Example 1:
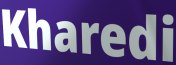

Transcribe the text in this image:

Kharedi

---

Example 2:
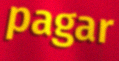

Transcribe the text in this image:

pagar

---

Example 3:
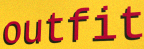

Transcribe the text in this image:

outfit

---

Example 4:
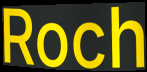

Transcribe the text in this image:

Roch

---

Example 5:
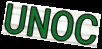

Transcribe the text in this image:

UNOC